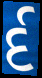
ર્દ